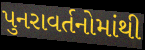
પુનરાવર્તનોમાંથી